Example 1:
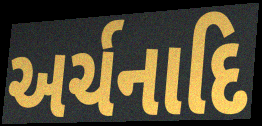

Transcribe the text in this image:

અર્ચનાદિ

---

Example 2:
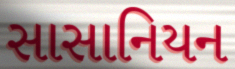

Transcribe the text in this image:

સાસાનિયન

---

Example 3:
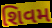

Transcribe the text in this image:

શિવમ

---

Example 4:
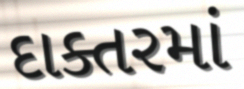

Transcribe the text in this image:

દાક્તરમાં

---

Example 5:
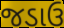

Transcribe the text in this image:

જડાઉ